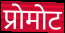
प्रोमोट